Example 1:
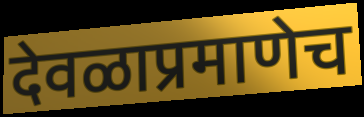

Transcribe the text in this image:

देवळाप्रमाणेच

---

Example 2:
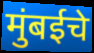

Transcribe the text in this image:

मुंबईचे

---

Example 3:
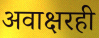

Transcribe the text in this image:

अवाक्षरही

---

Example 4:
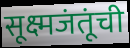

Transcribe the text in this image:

सूक्ष्मजंतूंची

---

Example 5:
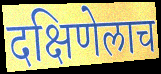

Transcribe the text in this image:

दक्षिणेलाच